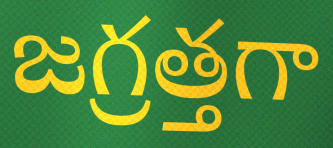
జగ్రత్తగా